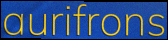
aurifrons